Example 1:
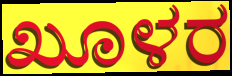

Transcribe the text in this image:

ಖೂಳರ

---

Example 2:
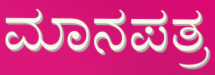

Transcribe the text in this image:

ಮಾನಪತ್ರ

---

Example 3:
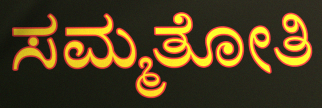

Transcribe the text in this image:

ಸಮ್ಮತೋತಿ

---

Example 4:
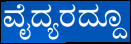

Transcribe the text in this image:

ವೈದ್ಯರದ್ದೂ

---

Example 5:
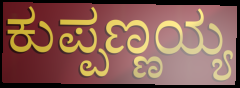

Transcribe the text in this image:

ಕುಪ್ಪಣ್ಣಯ್ಯ